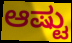
ಆಷ್ಟು